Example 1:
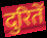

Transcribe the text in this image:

दुरितें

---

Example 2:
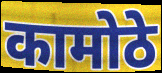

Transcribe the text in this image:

कामोठे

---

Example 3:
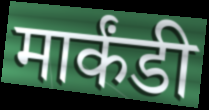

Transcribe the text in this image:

मार्कंडी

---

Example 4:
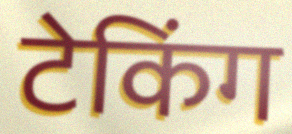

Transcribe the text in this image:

टेकिंग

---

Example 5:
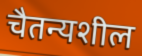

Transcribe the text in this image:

चैतन्यशील